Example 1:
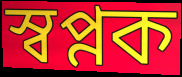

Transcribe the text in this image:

স্বপ্নক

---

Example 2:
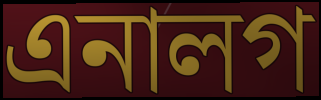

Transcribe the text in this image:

এনালগ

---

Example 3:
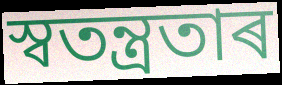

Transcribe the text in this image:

স্বতন্ত্ৰতাৰ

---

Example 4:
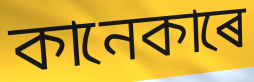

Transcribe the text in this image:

কানেকাৰে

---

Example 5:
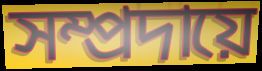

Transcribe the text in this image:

সম্প্ৰদায়ে